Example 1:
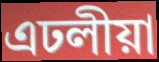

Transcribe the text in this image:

এঢলীয়া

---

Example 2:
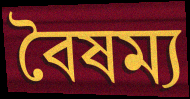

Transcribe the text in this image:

বৈষম্য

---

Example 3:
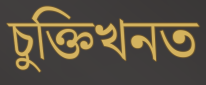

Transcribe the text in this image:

চুক্তিখনত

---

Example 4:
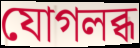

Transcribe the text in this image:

যোগলব্ধ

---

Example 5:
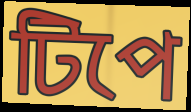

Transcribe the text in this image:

টিপে